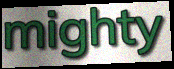
mighty